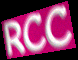
RCC